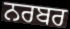
ਨਰਬਰ